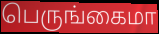
பெருங்கைமா